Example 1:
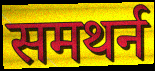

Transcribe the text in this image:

समथर्न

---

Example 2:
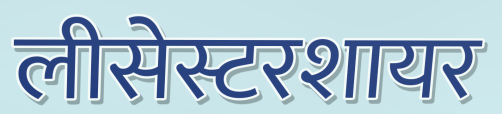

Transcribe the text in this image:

लीसेस्टरशायर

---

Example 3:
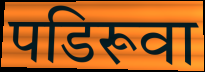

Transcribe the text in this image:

पडिरूवा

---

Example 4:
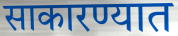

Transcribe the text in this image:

साकारण्यात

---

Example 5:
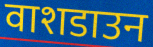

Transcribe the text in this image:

वाशडाउन